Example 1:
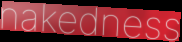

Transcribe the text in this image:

nakedness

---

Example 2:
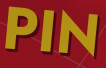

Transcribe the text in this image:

PIN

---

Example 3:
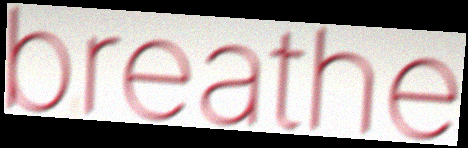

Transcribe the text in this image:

breathe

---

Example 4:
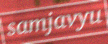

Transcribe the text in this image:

samjavyu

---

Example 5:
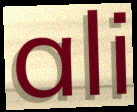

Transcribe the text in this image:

ali